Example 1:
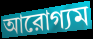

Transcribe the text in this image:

আরোগ্যম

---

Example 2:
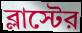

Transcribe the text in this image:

ব্লাস্টের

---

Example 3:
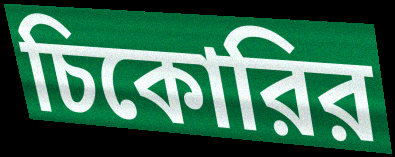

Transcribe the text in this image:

চিকোরির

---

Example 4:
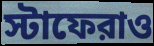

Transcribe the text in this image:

স্টাফেরাও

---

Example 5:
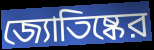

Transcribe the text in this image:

জ্যোতিষ্কের